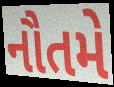
નૌતમે